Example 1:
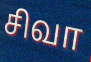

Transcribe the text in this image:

சிவா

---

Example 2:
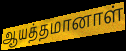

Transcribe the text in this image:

ஆயத்தமானாள்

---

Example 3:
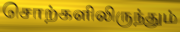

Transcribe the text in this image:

சொற்களிலிருந்தும்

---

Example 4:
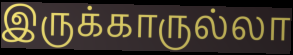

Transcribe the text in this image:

இருக்காருல்லா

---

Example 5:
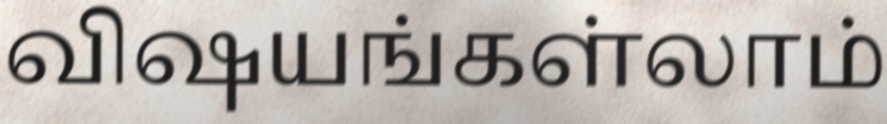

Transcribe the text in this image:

விஷயங்கள்லாம்